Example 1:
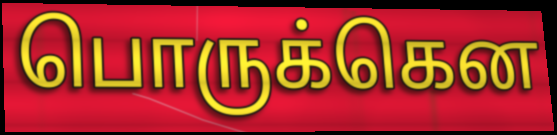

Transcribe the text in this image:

பொருக்கென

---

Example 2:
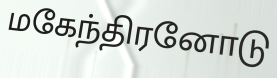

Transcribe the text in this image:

மகேந்திரனோடு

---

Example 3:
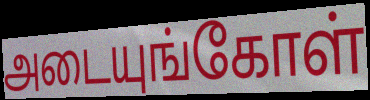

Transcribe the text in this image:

அடையுங்கோள்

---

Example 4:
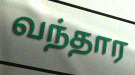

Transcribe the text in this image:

வந்தார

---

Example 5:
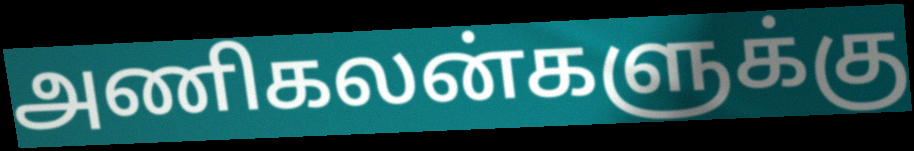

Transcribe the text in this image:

அணிகலன்களுக்கு